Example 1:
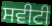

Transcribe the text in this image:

ਸਵੀਟੀ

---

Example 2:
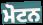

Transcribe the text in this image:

ਮੋਟਨ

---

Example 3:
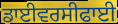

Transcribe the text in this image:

ਡਾਈਵਰਸੀਫਾਈ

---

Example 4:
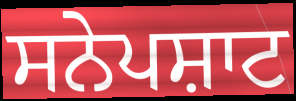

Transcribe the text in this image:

ਸਨੇਪਸ਼ਾਟ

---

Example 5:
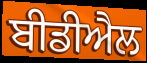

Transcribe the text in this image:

ਬੀਡੀਐਲ